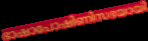
ഭാഷാപോഷിണിസഭയായി